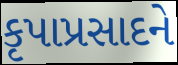
કૃપાપ્રસાદને